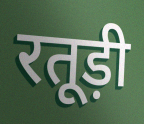
रतूड़ी